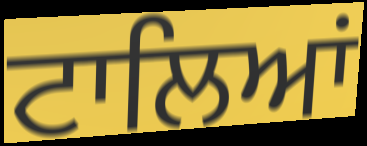
ਟਾਲਿਆਂ